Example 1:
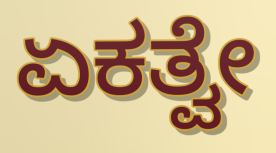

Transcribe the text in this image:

ಏಕತ್ವೇ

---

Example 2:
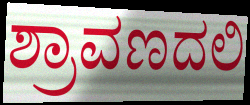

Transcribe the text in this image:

ಶ್ರಾವಣದಲಿ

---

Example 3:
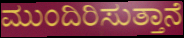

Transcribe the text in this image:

ಮುಂದಿರಿಸುತ್ತಾನೆ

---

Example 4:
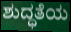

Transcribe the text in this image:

ಶುದ್ಧತೆಯ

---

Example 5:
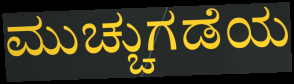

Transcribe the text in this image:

ಮುಚ್ಚುಗಡೆಯ